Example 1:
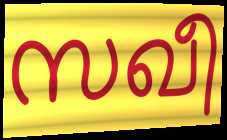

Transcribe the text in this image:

സഖീ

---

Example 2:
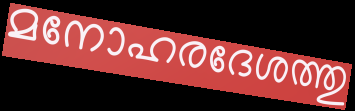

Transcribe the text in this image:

മനോഹരദേശത്തു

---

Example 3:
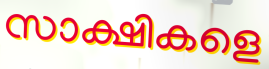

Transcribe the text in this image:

സാക്ഷികളെ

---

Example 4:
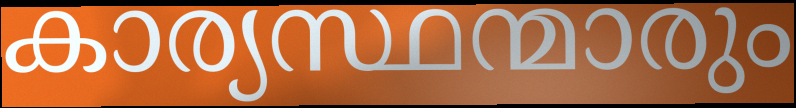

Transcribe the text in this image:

കാര്യസ്ഥന്മാരും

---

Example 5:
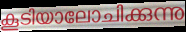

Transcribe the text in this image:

കൂടിയാലോചിക്കുന്നു